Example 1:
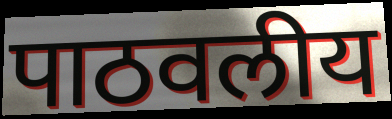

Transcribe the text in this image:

पाठवलीय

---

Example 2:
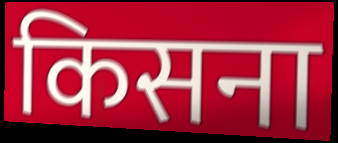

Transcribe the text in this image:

किसना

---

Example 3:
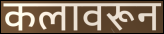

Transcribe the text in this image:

कलावरून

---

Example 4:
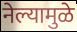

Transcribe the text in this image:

नेल्यामुळे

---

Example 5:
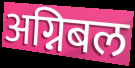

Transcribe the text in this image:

अग्निबल